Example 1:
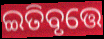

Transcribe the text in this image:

ଇତିବୃତ୍ତେ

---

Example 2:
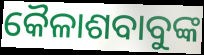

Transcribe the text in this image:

କୈଳାଶବାବୁଙ୍କ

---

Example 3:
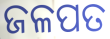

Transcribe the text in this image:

ଜଳପତ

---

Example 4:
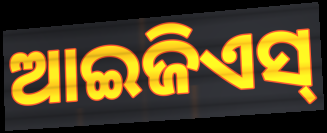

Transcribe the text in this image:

ଆଇଜିଏସ୍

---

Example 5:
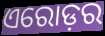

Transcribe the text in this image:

ଏରୋଡ଼ର